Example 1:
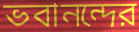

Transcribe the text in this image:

ভবানন্দের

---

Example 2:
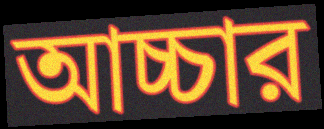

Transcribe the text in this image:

আচ্চার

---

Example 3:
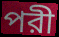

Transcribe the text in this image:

পরী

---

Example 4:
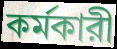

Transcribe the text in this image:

কর্মকারী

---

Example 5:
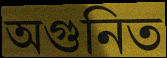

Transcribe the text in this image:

অগুনিত